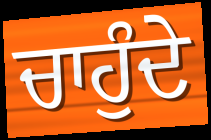
ਚਾਹੁੰਦੇ